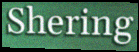
Shering